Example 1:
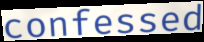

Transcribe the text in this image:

confessed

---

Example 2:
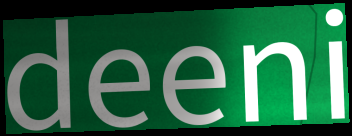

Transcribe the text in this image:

deeni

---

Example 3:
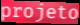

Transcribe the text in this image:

projeto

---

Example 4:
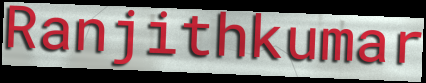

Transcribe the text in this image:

Ranjithkumar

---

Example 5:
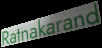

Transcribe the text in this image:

Ratnakarand